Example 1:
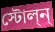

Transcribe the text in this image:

স্টোল্ন্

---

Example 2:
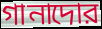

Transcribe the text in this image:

গানাদোর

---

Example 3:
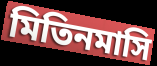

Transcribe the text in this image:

মিতিনমাসি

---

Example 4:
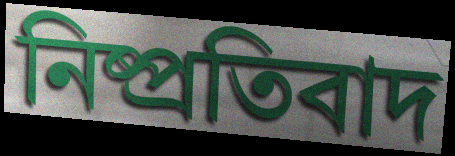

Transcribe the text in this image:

নিষ্প্রতিবাদ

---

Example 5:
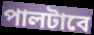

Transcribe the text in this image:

পালটাবে